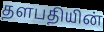
தளபதியின்